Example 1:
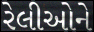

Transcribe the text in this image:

રેલીઓને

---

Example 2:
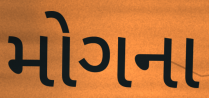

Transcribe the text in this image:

મોગના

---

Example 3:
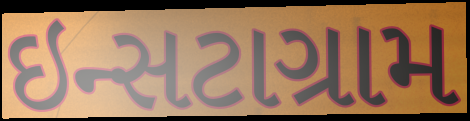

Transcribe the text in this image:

ઇન્સટાગ્રામ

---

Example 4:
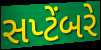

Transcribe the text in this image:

સપ્ટેંબરે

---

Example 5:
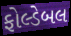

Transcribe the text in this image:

ફોલ્ડેબલ